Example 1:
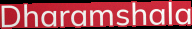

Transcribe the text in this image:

Dharamshala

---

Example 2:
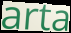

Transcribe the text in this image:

arta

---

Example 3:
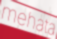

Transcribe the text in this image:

mehata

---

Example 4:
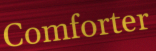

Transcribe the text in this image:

Comforter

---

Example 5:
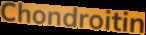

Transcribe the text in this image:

Chondroitin